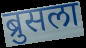
ब्रुसला